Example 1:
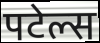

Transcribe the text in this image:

पटेल्स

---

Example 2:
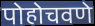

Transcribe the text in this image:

पोहोचवणे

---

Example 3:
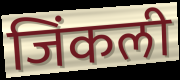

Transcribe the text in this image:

जिंकली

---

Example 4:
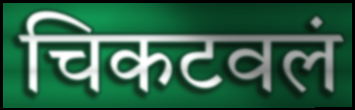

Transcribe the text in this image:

चिकटवलं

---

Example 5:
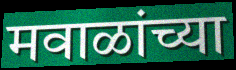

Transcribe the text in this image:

मवाळांच्या